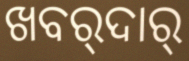
ଖବର୍‍ଦାର୍